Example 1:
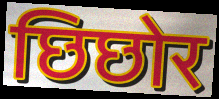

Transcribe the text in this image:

छिछोर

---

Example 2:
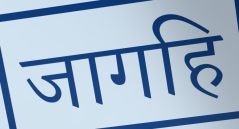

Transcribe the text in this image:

जागहि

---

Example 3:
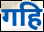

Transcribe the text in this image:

गहि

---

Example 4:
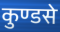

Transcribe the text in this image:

कुण्डसे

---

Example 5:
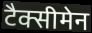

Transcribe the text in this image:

टैक्सीमेन